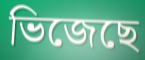
ভিজেছে